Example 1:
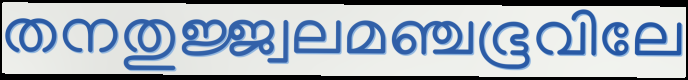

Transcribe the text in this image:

തനതുജ്ജ്വലമഞ്ചഭൂവിലേ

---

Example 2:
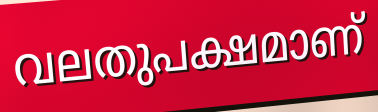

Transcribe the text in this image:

വലതുപക്ഷമാണ്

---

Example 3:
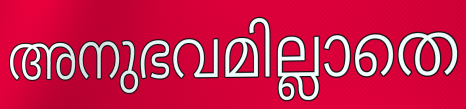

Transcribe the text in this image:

അനുഭവമില്ലാതെ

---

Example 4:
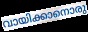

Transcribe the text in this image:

വായിക്കാനൊരു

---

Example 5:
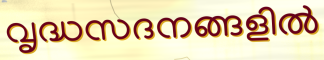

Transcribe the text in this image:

വൃദ്ധസദനങ്ങളിൽ